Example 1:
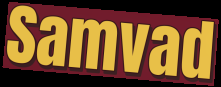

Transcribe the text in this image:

Samvad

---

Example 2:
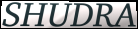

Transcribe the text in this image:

SHUDRA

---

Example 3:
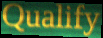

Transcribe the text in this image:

Qualify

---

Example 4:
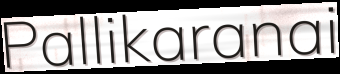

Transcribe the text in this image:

Pallikaranai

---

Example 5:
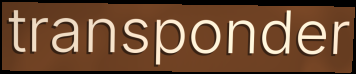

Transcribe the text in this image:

transponder